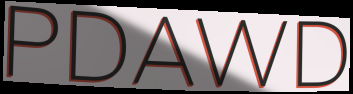
PDAWD